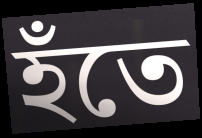
হঁতে